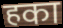
हका